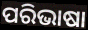
ପରିଭାଷା